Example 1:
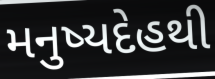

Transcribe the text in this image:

મનુષ્યદેહથી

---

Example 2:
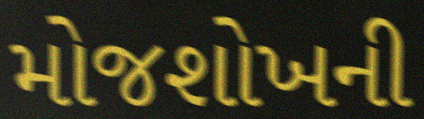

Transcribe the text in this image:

મોજશોખની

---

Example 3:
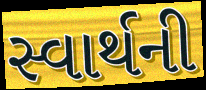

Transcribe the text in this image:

સ્વાર્થની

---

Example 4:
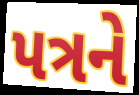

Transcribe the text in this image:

પત્રને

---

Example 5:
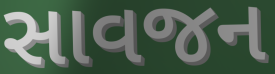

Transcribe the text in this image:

સાવજન